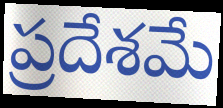
ప్రదేశమే